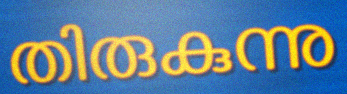
തിരുകുന്നു